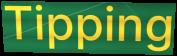
Tipping